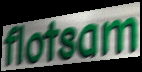
flotsam